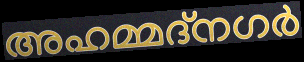
അഹമ്മദ്നഗർ